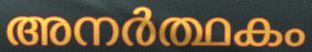
അനർത്ഥകം